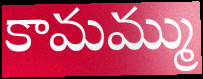
కామమ్ము